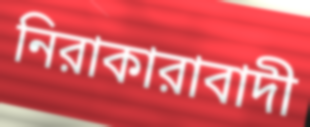
নিরাকারাবাদী